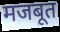
मजबूत